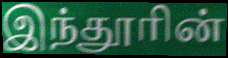
இந்தூரின்